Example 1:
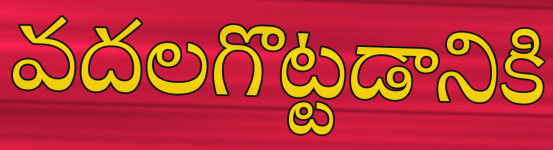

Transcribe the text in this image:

వదలగొట్టడానికి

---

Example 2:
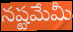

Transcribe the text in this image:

నష్టమేమీ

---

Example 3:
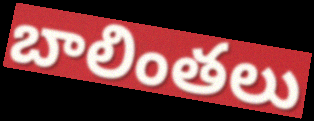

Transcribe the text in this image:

బాలింతలు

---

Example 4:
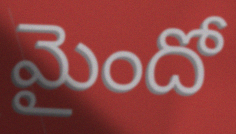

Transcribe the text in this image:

మైందో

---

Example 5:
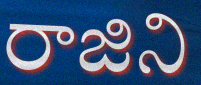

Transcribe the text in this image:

రాజిని